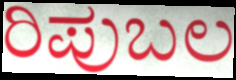
ರಿಪುಬಲ